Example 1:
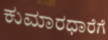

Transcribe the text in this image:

ಕುಮಾರಧಾರೆಗೆ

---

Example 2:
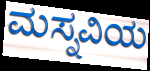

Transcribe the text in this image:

ಮಸ್ನವಿಯ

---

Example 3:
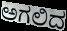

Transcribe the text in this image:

ಅಗಲಿದ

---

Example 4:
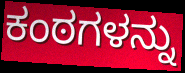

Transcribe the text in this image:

ಕಂಠಗಳನ್ನು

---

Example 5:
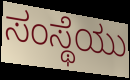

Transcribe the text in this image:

ಸಂಸ್ಥೆಯು